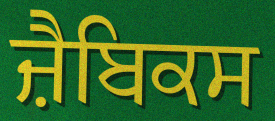
ਜ਼ੈਬਿਕਸ